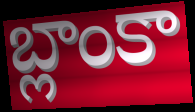
బ్లాంకా